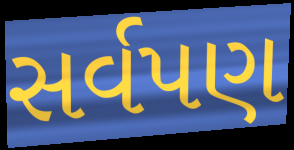
સર્વપણ